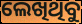
ଲେଖିଥିବୁ